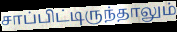
சாப்பிட்டிருந்தாலும்